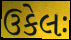
ઉકેલઃ